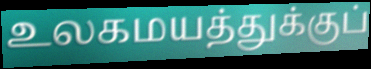
உலகமயத்துக்குப்